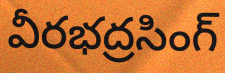
వీరభద్రసింగ్